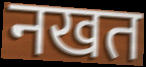
नखत